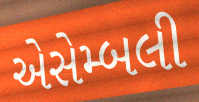
એસેમ્બલી